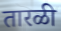
तारळी